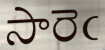
సారెఁ